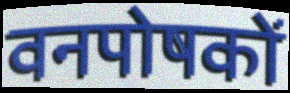
वनपोषकों